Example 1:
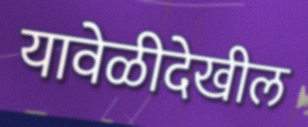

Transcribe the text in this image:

यावेळीदेखील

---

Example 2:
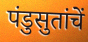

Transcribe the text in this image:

पंडुसुतांचें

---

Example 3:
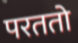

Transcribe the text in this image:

परततो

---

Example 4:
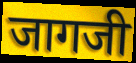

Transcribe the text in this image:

जागजी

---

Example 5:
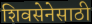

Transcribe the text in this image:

शिवसेनेसाठी